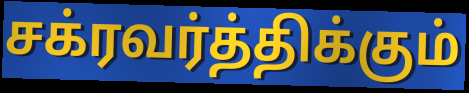
சக்ரவர்த்திக்கும்